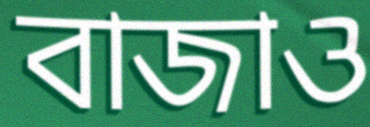
বাজাও